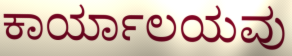
ಕಾರ್ಯಾಲಯವು